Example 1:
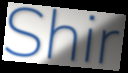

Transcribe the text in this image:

Shir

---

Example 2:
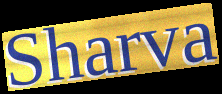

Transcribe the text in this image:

Sharva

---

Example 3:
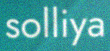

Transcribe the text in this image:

solliya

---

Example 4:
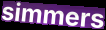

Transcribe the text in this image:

simmers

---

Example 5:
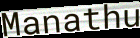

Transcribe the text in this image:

Manathu